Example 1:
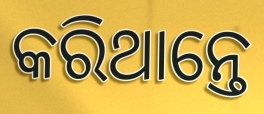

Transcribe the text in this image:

କରିଥାନ୍ତେ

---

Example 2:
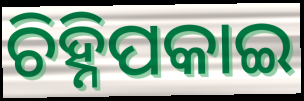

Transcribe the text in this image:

ଚିହ୍ନିପକାଇ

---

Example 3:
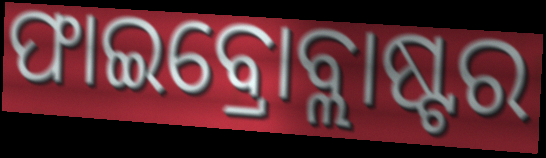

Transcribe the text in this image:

ଫାଇବ୍ରୋବ୍ଲାଷ୍ଟର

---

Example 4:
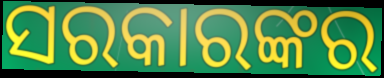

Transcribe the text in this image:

ସରକାରଙ୍କର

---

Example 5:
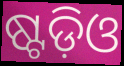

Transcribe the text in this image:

ଷ୍ଟଡ଼ିଓ